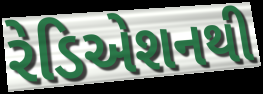
રેડિએશનથી